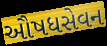
ઔષધસેવન